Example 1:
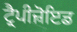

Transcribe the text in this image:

ਟ੍ਰੈਪੀਜ਼ੋਇਡ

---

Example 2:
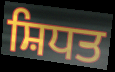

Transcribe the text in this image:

ਸ਼ਿਧਤ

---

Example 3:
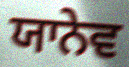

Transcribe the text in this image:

ਯਾਨੇਵ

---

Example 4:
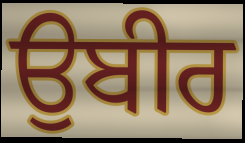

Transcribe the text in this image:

ਉਬੀਰ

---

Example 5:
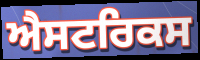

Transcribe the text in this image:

ਐਸਟਰਿਕਸ